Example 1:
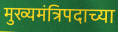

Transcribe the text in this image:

मुख्यमंत्रिपदाच्या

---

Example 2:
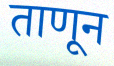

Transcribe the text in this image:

ताणून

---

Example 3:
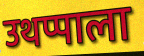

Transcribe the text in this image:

उथप्पाला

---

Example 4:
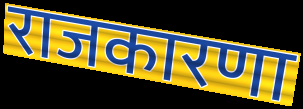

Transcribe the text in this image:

राजकारणा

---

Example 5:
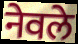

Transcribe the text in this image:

नेवले